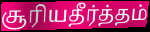
சூரியதீர்த்தம்